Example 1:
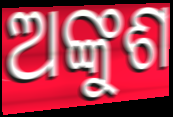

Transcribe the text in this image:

ଅଙ୍କୁଶ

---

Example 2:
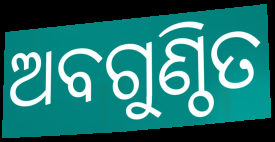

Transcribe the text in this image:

ଅବଗୁଣ୍ଠିତ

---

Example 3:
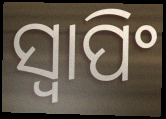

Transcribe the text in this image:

ସ୍ବାପିଂ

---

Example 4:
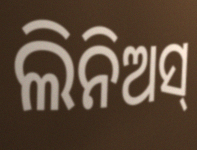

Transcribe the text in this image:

ଲିନିଅସ୍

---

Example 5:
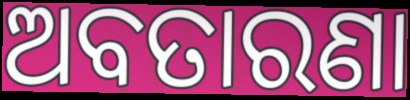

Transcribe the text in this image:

ଅବତାରଣା